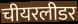
चीयरलीडर